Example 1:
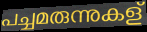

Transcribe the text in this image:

പച്ചമരുന്നുകള്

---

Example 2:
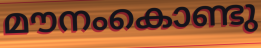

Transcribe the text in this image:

മൗനംകൊണ്ടു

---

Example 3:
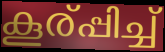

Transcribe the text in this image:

കൂര്പ്പിച്ച്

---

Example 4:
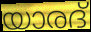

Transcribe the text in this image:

യാരദ്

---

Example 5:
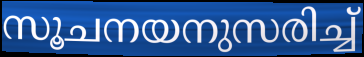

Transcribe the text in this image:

സൂചനയനുസരിച്ച്